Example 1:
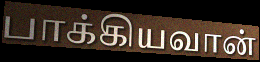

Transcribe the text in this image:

பாக்கியவான்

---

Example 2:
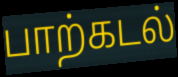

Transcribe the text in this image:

பாற்கடல்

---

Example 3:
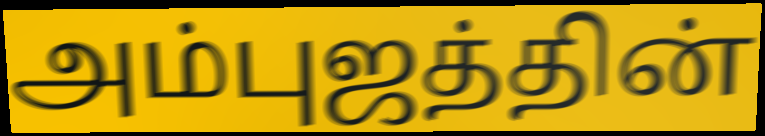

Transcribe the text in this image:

அம்புஜத்தின்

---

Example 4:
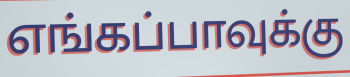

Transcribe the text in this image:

எங்கப்பாவுக்கு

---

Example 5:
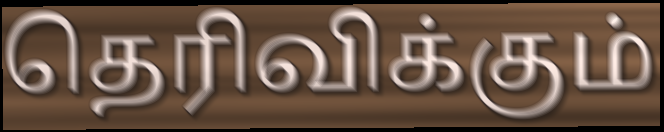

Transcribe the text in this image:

தெரிவிக்கும்